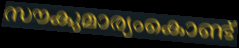
സൗകുമാര്യംകൊണ്ട്